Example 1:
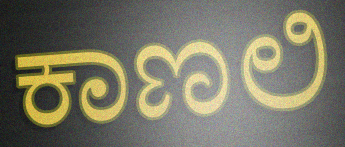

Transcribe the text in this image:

ಕಾಣಲಿ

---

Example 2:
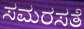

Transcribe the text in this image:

ಸಮರಸತೆ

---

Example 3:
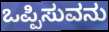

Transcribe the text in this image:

ಒಪ್ಪಿಸುವನು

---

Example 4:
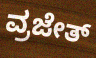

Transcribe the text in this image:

ವ್ರಜೇತ್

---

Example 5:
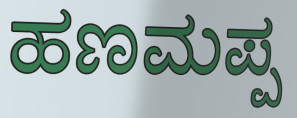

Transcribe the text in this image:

ಹಣಮಪ್ಪ